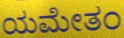
ಯಮೇತಂ